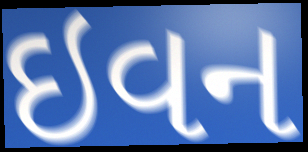
ઇવન